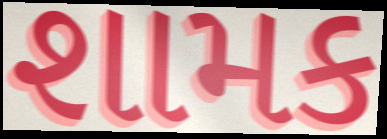
શામક